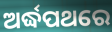
ଅର୍ଦ୍ଧପଥରେ